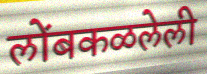
लोंबकळलेली